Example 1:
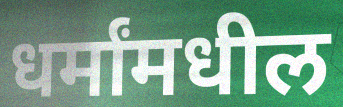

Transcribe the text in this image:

धर्मांमधील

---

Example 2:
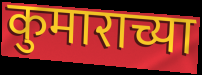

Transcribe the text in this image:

कुमाराच्या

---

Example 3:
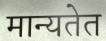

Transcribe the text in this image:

मान्यतेत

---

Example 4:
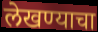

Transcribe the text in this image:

लेखण्याचा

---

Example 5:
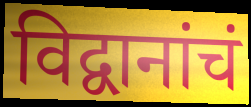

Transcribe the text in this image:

विद्वानांचं